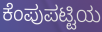
ಕೆಂಪುಪಟ್ಟಿಯ